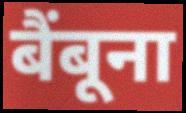
बैंबूना